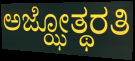
ಅಜ್ಝೋತ್ಥರತಿ